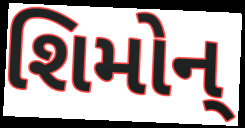
શિમોન્